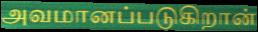
அவமானப்படுகிறான்